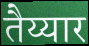
तैय्यार